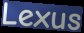
Lexus